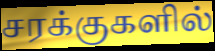
சரக்குகளில்